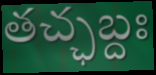
తచ్ఛబ్దః